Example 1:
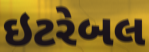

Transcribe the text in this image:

ઇટરેબલ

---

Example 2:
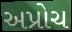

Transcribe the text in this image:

અપ્રોચ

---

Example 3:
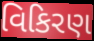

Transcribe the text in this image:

વિકિરણ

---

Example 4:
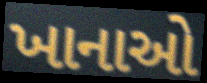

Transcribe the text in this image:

ખાનાઓ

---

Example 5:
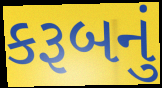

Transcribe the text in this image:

કરૂબનું